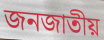
জনজাতীয়